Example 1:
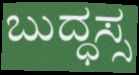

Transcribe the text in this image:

ಬುದ್ಧಸ್ಸ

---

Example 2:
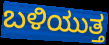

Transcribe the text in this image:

ಬಳಿಯುತ್ತ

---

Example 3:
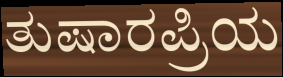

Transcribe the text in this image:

ತುಷಾರಪ್ರಿಯ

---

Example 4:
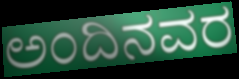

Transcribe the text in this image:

ಅಂದಿನವರ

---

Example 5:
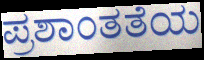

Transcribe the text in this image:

ಪ್ರಶಾಂತತೆಯ